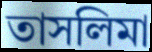
তাসলিমা